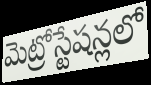
మెట్రోస్టేషన్లలో